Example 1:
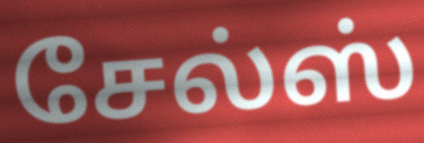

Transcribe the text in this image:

சேல்ஸ்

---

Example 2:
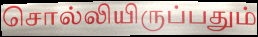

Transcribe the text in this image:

சொல்லியிருப்பதும்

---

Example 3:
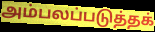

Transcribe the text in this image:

அம்பலப்படுத்தக்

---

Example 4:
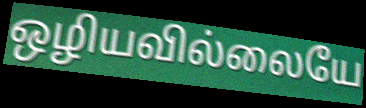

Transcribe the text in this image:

ஒழியவில்லையே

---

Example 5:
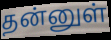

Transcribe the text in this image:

தன்னுள்